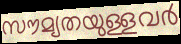
സൗമ്യതയുള്ളവർ